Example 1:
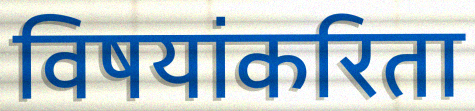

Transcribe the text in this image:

विषयांकरिता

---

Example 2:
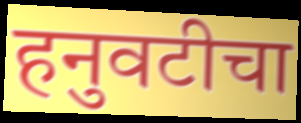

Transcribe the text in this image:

हनुवटीचा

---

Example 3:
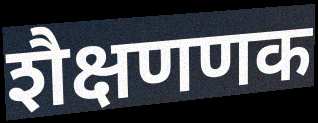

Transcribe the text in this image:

शैक्षणणक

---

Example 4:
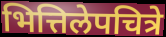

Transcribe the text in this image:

भित्तिलेपचित्रे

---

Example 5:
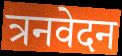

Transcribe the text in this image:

त्रनवेदन